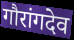
गौरांगदेव